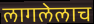
लागलेलाच